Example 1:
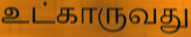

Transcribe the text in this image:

உட்காருவது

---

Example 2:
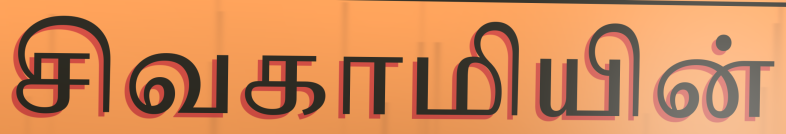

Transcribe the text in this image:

சிவகாமியின்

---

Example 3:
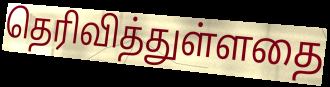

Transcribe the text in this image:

தெரிவித்துள்ளதை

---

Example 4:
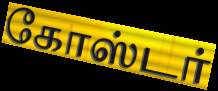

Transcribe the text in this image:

கோஸ்டர்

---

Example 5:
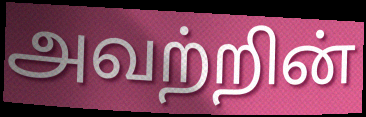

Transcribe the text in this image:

அவற்றின்